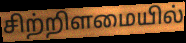
சிற்றிளமையில்